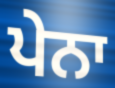
ਪੇਨਾ